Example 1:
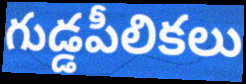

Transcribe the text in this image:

గుడ్డపీలికలు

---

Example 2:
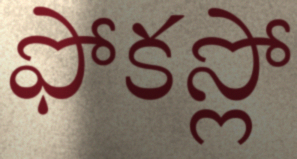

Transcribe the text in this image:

ఫోకస్లో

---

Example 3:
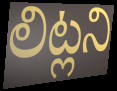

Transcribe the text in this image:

లిట్లని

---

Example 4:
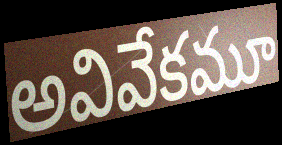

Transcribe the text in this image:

అవివేకమూ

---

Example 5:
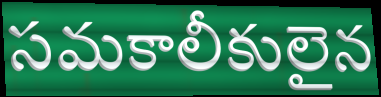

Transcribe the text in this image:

సమకాలీకులైన